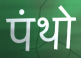
पंथो